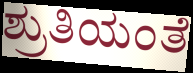
ಶ್ರುತಿಯಂತೆ